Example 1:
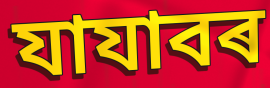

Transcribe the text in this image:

যাযাবৰ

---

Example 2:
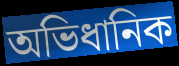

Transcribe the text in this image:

অভিধানিক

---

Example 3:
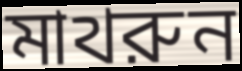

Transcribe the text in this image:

মাথৰুন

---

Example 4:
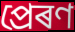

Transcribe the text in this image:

প্ৰেৰণ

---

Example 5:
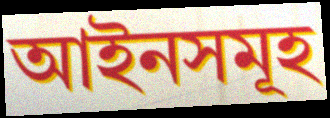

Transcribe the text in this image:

আইনসমূহ